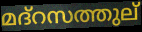
മദ്റസത്തുല്